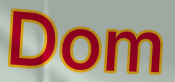
Dom